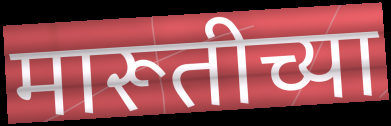
मारूतीच्या